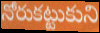
నోరుకట్టుకుని